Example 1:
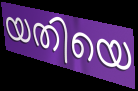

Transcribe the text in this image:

യതിയെ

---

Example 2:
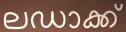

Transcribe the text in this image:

ലഡാക്ക്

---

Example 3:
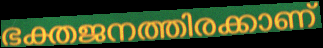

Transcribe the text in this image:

ഭക്തജനത്തിരക്കാണ്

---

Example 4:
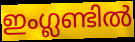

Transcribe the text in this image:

ഇംഗ്ലണ്ടിൽ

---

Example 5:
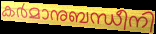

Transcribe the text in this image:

കർമാനുബന്ധീനി